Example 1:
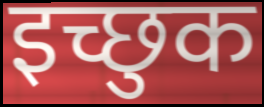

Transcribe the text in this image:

इच्‍छुक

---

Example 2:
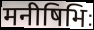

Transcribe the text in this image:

मनीषिभिः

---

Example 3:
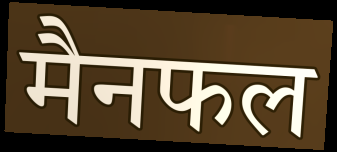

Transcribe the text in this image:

मैनफल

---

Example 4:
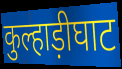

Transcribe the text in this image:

कुल्हाड़ीघाट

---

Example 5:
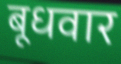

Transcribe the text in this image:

बूधवार